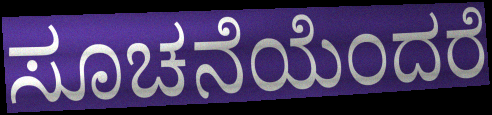
ಸೂಚನೆಯೆಂದರೆ